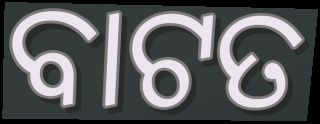
ବାଟତ